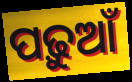
ପଢ଼ୁଆଁ